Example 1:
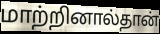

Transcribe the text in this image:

மாற்றினால்தான்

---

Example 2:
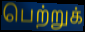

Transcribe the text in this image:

பெற்றுக்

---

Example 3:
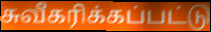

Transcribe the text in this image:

சுவீகரிக்கப்பட்டு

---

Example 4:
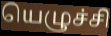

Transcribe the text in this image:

யெழுச்சி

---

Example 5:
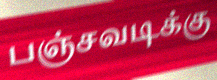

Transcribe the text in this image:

பஞ்சவடிக்கு